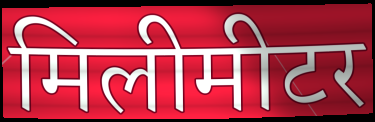
मिलीमीटर